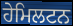
ਹੇਮਿਲਟਨ